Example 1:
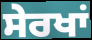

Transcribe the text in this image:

ਸੇਰਖਾਂ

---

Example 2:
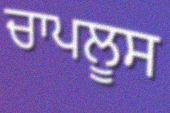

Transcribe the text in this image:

ਚਾਪਲੂਸ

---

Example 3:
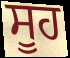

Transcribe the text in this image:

ਸੂਹ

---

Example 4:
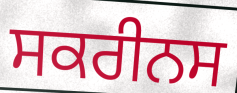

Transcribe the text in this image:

ਸਕਰੀਨਸ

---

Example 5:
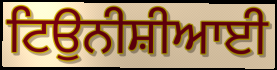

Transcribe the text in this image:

ਟਿਉਨੀਸ਼ੀਆਈ